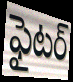
ఫైటర్